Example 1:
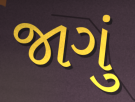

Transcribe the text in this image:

જાગું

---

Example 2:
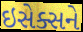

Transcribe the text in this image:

ઇસેક્સને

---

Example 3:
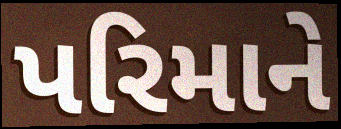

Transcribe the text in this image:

પરિમાને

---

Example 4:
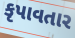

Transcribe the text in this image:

કૃપાવતાર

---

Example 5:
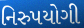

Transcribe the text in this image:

નિરુપયોગી